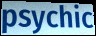
psychic